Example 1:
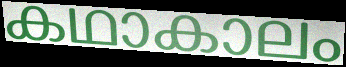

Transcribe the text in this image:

കഥാകാലം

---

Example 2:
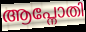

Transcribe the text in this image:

ആപ്നോതി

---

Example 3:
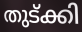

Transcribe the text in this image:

തുട്ക്കി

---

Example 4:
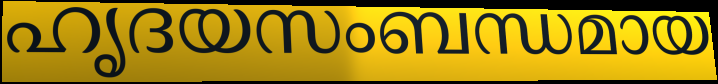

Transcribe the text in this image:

ഹൃദയസംബന്ധമായ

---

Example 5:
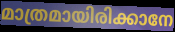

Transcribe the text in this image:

മാത്രമായിരിക്കാനേ